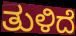
ತುಳಿದೆ